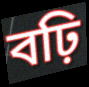
বঢ়ি